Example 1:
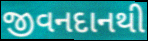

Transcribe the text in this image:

જીવનદાનથી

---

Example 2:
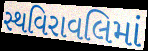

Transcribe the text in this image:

સ્થવિરાવલિમાં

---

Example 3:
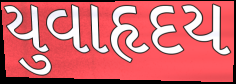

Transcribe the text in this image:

યુવાહૃદય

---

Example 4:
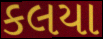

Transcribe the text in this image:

કલયા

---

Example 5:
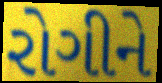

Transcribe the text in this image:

રોગીને